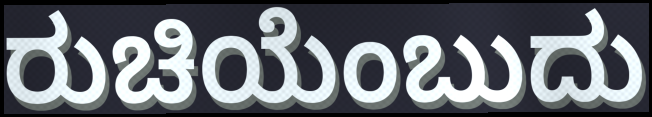
ರುಚಿಯೆಂಬುದು